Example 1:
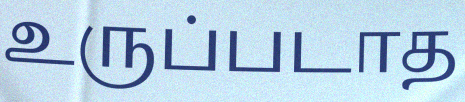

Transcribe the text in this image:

உருப்படாத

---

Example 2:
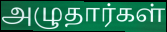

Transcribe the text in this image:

அழுதார்கள்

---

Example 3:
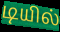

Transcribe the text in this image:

டியில்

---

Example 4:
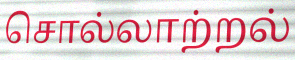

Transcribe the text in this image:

சொல்லாற்றல்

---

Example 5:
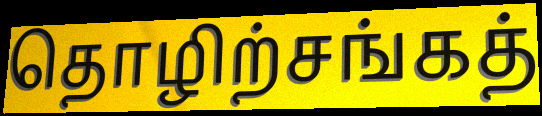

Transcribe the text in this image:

தொழிற்சங்கத்